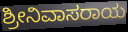
ಶ್ರೀನಿವಾಸರಾಯ